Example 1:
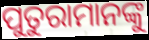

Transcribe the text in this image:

ପୁତୁରାମାନଙ୍କୁ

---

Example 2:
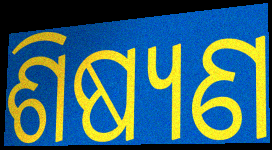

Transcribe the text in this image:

ଶିଷ୍ୟଣ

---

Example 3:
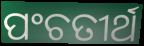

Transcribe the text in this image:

ପଂଚତୀର୍ଥ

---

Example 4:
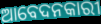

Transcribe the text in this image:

ଆବେଦନକାରୀ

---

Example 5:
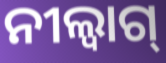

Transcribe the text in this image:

ନୀଲ୍ବାଗ୍